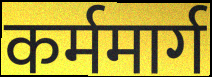
कर्ममार्ग